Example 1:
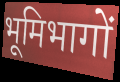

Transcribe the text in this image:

भूमिभागों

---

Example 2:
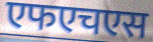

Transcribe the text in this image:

एफएचएस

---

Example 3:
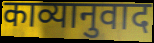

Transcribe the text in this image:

काव्यानुवाद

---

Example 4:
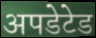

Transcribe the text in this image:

अपडेटेड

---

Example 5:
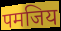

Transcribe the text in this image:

पमजिय